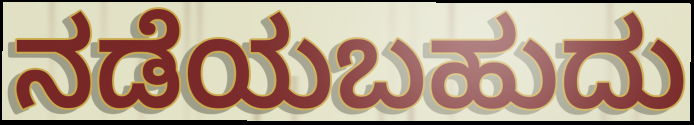
ನಡೆಯಬಹುದು